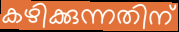
കഴിക്കുന്നതിന്